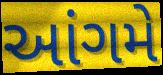
આંગમે